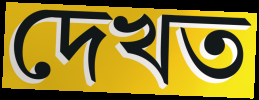
দেখত